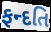
ફન્દતિ